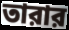
তারার